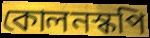
কোলনস্কপি